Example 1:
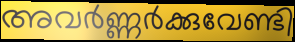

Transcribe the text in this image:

അവർണ്ണർക്കുവേണ്ടി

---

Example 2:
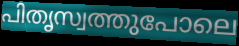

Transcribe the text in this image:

പിതൃസ്വത്തുപോലെ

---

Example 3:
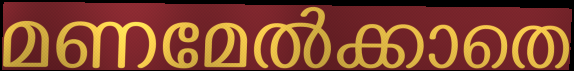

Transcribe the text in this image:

മണമേൽക്കാതെ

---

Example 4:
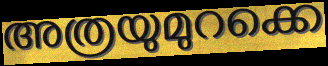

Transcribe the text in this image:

അത്രയുമുറക്കെ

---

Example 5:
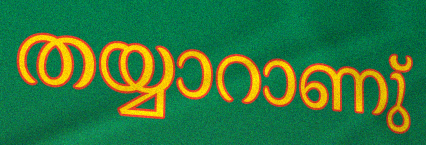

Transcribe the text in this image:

തയ്യാറാണു്